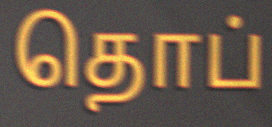
தொப்